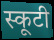
स्कूटी